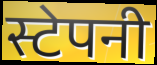
स्टेपनी